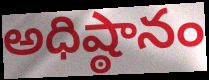
అధిష్ఠానం